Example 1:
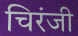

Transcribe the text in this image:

चिरंजी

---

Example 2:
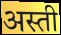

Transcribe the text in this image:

अस्ती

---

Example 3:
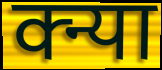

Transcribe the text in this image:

क्न्या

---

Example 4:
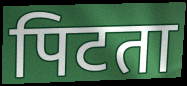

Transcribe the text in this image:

पिटता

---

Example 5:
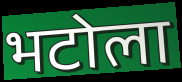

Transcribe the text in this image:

भटोला